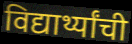
विद्यार्थ्‍यांची